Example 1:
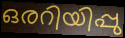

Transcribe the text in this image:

ഒരറിയിപ്പു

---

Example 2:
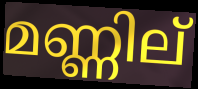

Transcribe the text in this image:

മണ്ണില്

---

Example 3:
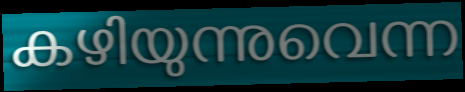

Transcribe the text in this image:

കഴിയുന്നുവെന്ന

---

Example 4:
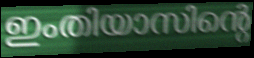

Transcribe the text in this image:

ഇംതിയാസിന്റെ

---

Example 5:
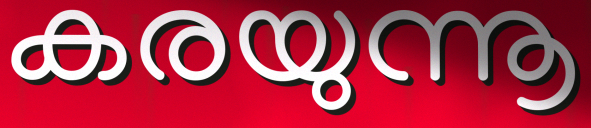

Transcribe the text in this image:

കരയുന്നൂ